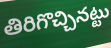
తిరిగొచ్చినట్టు